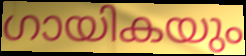
ഗായികയും